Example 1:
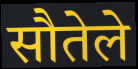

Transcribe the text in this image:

सौतेले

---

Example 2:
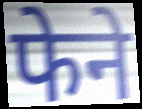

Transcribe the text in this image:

फेने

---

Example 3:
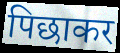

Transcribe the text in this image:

पिछाकर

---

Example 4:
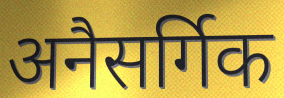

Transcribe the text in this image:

अनैसर्गिक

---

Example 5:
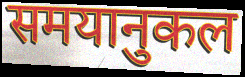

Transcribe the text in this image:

समयानुकल